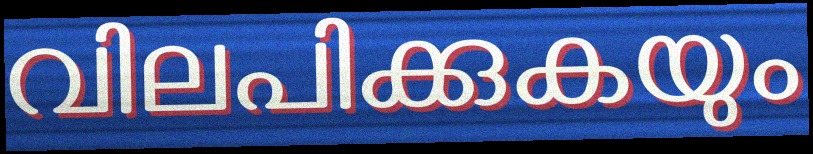
വിലപിക്കുകയും